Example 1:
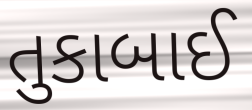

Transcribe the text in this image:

તુકાબાઈ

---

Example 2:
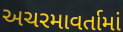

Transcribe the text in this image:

અચરમાવર્તામાં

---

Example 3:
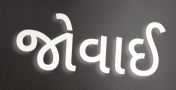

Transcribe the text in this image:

જોવાઈ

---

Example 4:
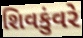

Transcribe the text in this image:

શિવકુંવરે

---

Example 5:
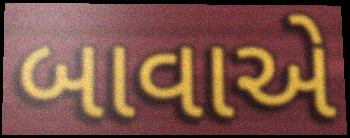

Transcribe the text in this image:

બાવાએ